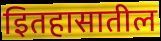
इितहासातील